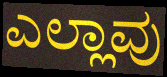
ಎಲ್ಲಾವು